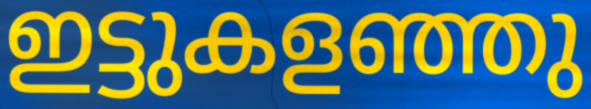
ഇട്ടുകളഞ്ഞു